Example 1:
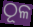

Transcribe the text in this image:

ଠୂଳ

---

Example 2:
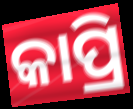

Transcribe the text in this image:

କାପ୍ରି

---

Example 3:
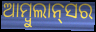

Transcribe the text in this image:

ଆମ୍ବୁଲାନ୍‌ସର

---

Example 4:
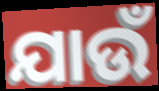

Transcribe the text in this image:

ଯାଉଁ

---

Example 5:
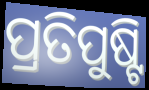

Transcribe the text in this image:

ପ୍ରତିପୁଷ୍ଟି